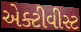
એક્ટીવીસ્ટ